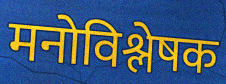
मनोविश्लेषक